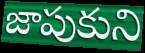
జాపుకుని